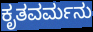
ಕೃತವರ್ಮನು